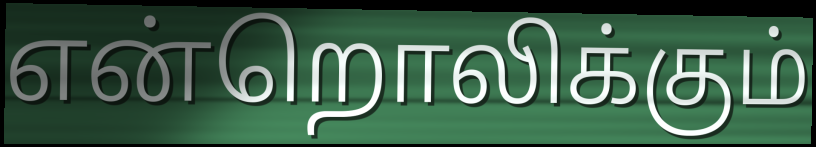
என்றொலிக்கும்